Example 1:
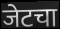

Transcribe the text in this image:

जेटचा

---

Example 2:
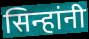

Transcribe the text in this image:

सिन्हांनी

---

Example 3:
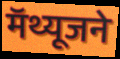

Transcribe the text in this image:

मॅथ्यूजने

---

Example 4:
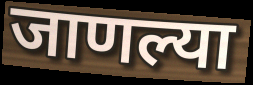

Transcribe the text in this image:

जाणल्या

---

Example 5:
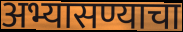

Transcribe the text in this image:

अभ्यासण्याचा